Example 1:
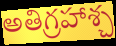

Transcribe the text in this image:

అతిగ్రహాశ్చ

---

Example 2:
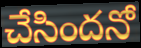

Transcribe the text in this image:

చేసిందనో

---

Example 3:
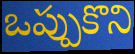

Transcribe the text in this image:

ఒప్పుకొని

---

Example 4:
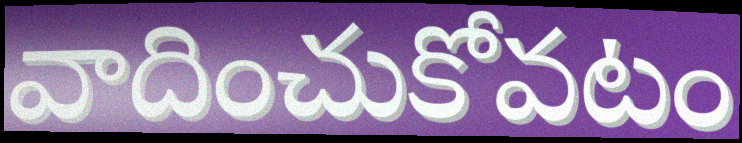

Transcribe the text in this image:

వాదించుకోవటం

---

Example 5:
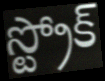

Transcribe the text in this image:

స్ట్రోక్